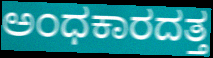
ಅಂಧಕಾರದತ್ತ